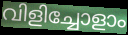
വിളിച്ചോളാം